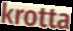
krotta